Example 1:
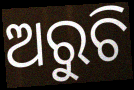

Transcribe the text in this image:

ଅରୁଚି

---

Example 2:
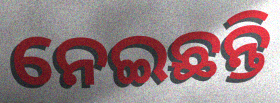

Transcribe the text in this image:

ନେଇଛନ୍ତି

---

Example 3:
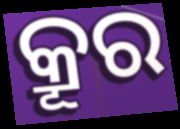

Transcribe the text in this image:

କ୍ରୂର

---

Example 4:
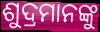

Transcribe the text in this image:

ଶୁଦ୍ରମାନଙ୍କୁ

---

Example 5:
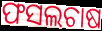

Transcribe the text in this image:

ଫସଲଚାଷ